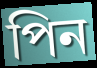
পিন